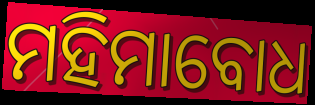
ମହିମାବୋଧ